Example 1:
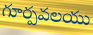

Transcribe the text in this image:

గూర్పవలయు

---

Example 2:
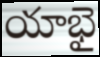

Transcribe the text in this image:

యాభై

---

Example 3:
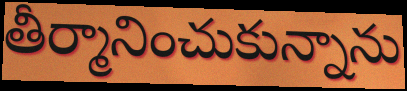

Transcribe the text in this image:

తీర్మానించుకున్నాను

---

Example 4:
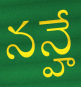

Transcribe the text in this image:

నన్హే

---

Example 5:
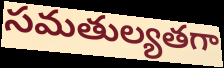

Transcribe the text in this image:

సమతుల్యతగా